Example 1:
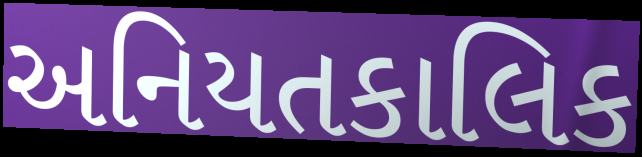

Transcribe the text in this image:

અનિયતકાલિક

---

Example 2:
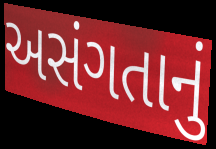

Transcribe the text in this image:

અસંગતાનું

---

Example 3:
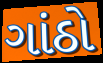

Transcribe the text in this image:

ગાંઠો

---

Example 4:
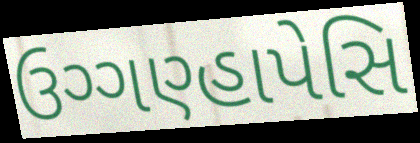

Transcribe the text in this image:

ઉગ્ગણ્હાપેસિ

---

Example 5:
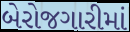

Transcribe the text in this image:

બેરોજગારીમાં